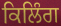
ਕਿਲਿੰਗ